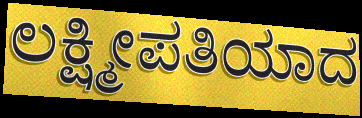
ಲಕ್ಷ್ಮೀಪತಿಯಾದ